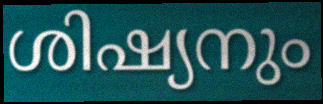
ശിഷ്യനും